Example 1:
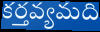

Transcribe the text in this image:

కర్తవ్యమది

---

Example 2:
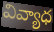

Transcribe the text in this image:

వివ్యాధ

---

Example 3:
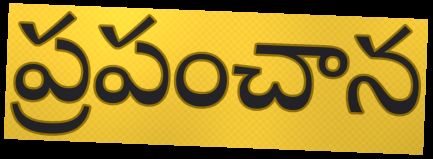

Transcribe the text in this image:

ప్రపంచాన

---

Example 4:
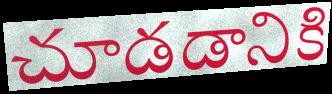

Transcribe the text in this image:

చూడడానికి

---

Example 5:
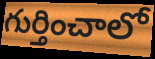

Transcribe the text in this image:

గుర్తించాలో